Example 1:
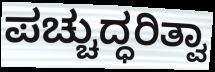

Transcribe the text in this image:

ಪಚ್ಚುದ್ಧರಿತ್ವಾ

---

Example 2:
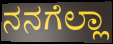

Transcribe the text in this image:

ನನಗೆಲ್ಲಾ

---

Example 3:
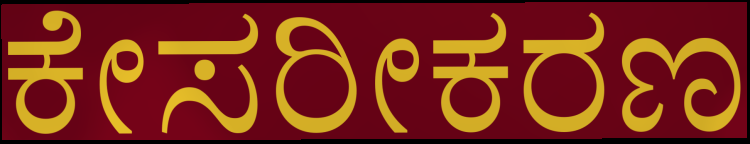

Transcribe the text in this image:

ಕೇಸರೀಕರಣ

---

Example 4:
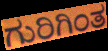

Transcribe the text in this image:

ಗುರಿಗಿಂತ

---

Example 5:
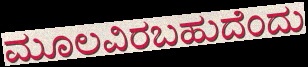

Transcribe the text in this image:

ಮೂಲವಿರಬಹುದೆಂದು